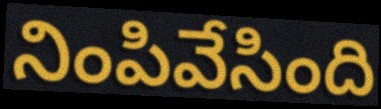
నింపివేసింది